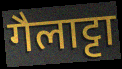
गैलाट्टा